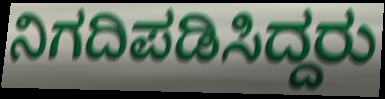
ನಿಗದಿಪಡಿಸಿದ್ದರು